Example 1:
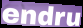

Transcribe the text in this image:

endru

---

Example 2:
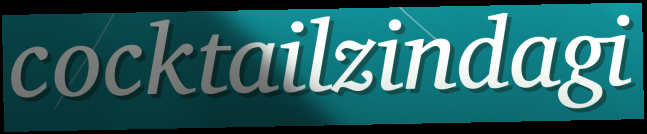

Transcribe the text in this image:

cocktailzindagi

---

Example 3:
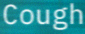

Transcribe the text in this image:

Cough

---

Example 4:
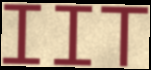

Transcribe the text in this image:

IIT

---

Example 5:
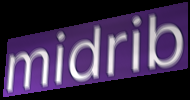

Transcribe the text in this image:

midrib